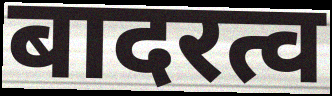
बादरत्व